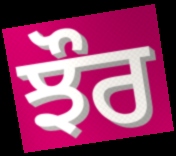
ਝੌਰ